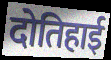
दोतिहाई